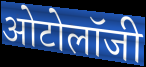
ओटोलॉजी